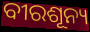
ବୀରଶୂନ୍ୟ